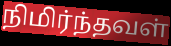
நிமிர்ந்தவள்